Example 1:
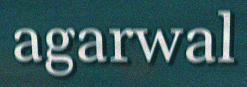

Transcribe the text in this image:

agarwal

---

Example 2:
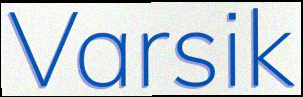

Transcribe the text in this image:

Varsik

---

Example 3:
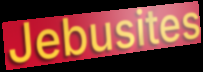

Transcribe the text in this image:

Jebusites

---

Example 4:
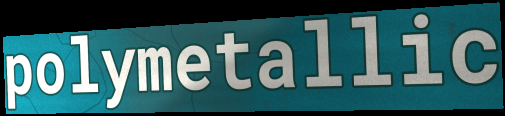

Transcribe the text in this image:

polymetallic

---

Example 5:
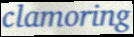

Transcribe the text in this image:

clamoring